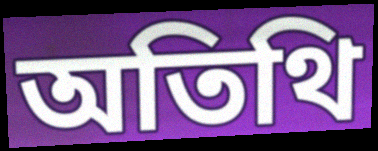
অতিথি